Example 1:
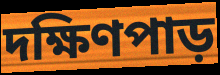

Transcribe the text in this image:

দক্ষিণপাড়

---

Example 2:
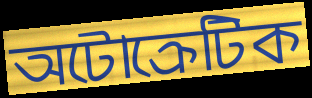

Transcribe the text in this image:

অটোক্রেটিক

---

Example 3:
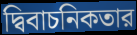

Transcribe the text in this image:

দ্বিবাচনিকতার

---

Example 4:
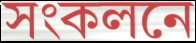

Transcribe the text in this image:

সংকলনে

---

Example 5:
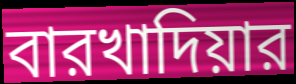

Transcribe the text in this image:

বারখাদিয়ার